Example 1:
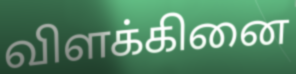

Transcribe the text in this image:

விளக்கினை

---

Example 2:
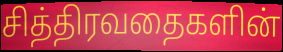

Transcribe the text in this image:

சித்திரவதைகளின்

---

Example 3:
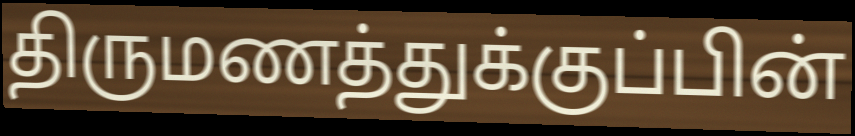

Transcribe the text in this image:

திருமணத்துக்குப்பின்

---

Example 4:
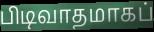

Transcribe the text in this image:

பிடிவாதமாகப்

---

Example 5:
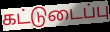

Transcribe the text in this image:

கட்டுடைப்பு